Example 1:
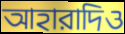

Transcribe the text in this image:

আহারাদিও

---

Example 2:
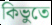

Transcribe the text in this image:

কিভুতে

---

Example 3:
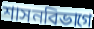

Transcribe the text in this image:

শাসনবিভাগে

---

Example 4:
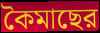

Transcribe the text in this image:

কৈমাছের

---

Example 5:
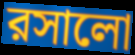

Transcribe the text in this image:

রসালো